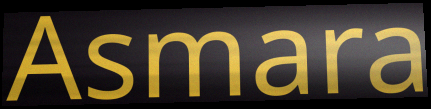
Asmara